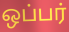
ஒப்பர்